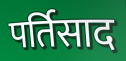
पर्तिसाद